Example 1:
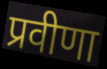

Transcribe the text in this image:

प्रवीणा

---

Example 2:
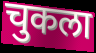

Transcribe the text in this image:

चुकला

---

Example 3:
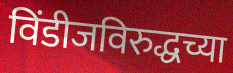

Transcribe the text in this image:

विंडीजविरुद्धच्या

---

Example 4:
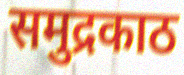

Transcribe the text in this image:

समुद्रकाठ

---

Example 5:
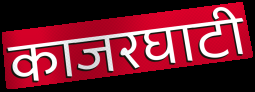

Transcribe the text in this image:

काजरघाटी